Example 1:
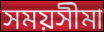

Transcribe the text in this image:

সময়সীমা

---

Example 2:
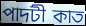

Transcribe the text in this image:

পাদটীকাত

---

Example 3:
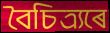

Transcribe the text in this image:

বৈচিত্ৰ্যৰে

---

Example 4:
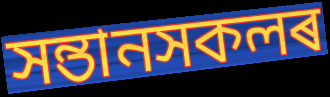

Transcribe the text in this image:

সন্তানসকলৰ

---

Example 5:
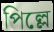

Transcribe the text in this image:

পিল্লে